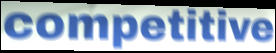
competitive